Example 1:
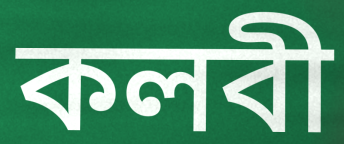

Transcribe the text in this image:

কলবী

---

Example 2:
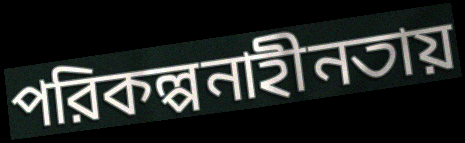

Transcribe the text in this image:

পরিকল্পনাহীনতায়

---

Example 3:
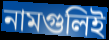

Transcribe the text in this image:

নামগুলিই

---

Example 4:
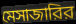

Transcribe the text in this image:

মেসাজারির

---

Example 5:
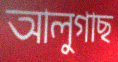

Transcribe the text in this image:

আলুগাছ